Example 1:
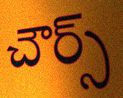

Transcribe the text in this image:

చౌర్స్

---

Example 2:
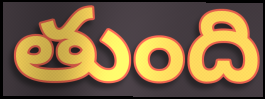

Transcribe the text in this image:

తుంది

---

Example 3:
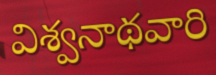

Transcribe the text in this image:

విశ్వనాథవారి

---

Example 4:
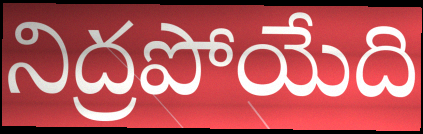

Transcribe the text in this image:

నిద్రపోయేది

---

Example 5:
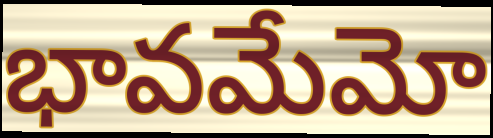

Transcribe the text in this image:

భావమేమో